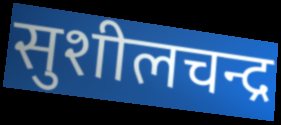
सुशीलचन्द्र